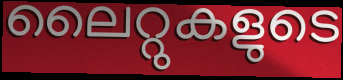
ലൈറ്റുകളുടെ